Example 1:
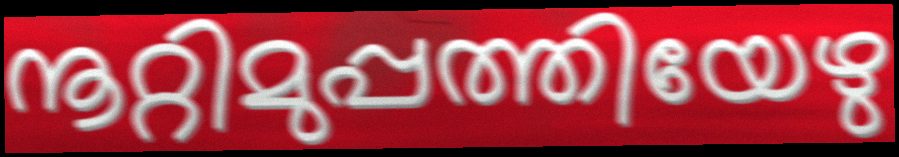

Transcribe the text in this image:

നൂറ്റിമുപ്പത്തിയേഴു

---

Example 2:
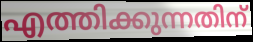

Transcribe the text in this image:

എത്തിക്കുന്നതിന്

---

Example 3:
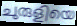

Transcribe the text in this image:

ചുരുളിയെ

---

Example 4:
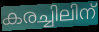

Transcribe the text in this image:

കരച്ചിലിന്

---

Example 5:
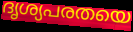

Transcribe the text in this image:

ദൃശ്യപരതയെ